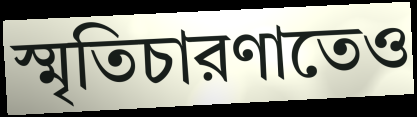
স্মৃতিচারণাতেও